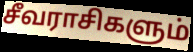
சீவராசிகளும்